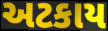
અટકાય